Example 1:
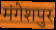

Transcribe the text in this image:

मंगेशपुर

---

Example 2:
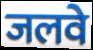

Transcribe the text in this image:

जलवे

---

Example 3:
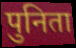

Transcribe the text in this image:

पुनिता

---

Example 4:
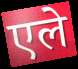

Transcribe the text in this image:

एले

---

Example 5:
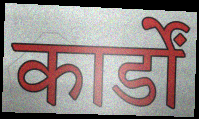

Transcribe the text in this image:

कार्डों